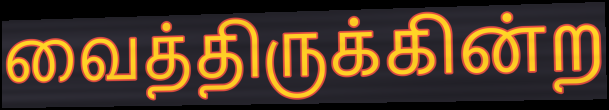
வைத்திருக்கின்ற